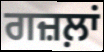
ਗਜ਼ਲ਼ਾਂ